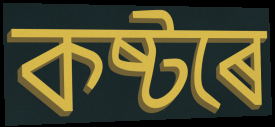
কষ্টৰে